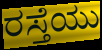
ರಸ್ತೆಯು